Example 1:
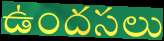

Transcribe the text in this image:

ఉందసలు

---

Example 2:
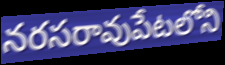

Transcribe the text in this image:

నరసరావుపేటలోని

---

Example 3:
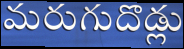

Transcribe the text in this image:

మరుగుదొడ్లు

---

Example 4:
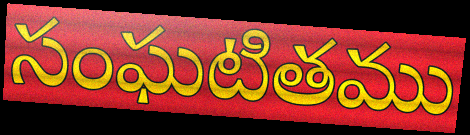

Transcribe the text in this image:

సంఘటితము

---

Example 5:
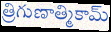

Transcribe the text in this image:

త్రిగుణాత్మికామ్